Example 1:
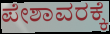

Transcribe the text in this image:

ಪೇಶಾವರಕ್ಕೆ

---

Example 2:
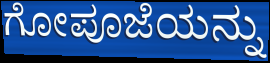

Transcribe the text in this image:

ಗೋಪೂಜೆಯನ್ನು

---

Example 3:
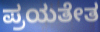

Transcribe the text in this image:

ಪ್ರಯತೇತ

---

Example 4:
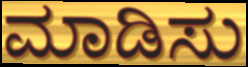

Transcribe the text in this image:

ಮಾಡಿಸು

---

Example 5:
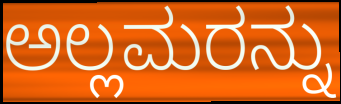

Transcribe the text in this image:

ಅಲ್ಲಮರನ್ನು